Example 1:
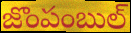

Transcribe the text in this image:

జొంపంబుల్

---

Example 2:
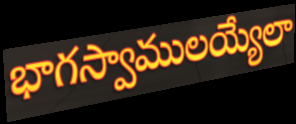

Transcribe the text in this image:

భాగస్వాములయ్యేలా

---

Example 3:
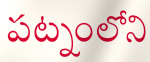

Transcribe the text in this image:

పట్నంలోని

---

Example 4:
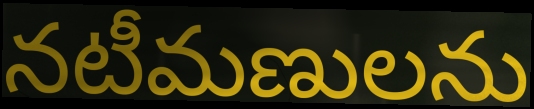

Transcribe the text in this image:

నటీమణులను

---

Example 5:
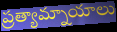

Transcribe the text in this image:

ప్రత్యామ్నాయాలు